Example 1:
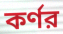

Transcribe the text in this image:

কর্ণর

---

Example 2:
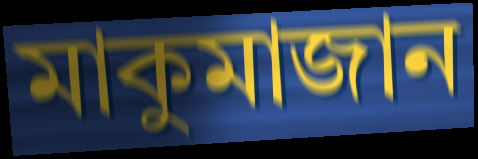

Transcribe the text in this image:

মাকুমাজান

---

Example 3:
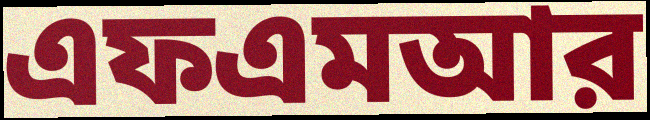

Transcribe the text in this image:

এফএমআর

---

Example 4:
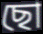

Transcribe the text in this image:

ছো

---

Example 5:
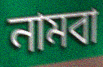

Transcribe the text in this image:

নামবা